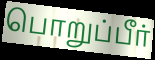
பொறுப்பீர்